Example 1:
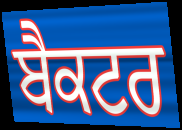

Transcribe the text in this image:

ਬੈਕਟਰ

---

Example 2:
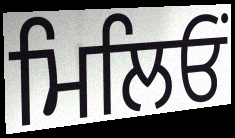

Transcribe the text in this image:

ਮਿਲਿਓਂ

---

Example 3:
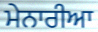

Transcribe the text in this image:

ਮੇਨਾਰੀਆ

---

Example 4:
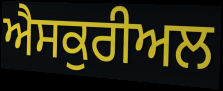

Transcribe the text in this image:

ਐਸਕੁਰੀਅਲ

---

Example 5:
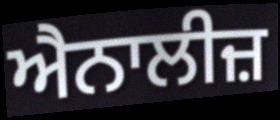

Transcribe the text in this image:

ਐਨਾਲੀਜ਼